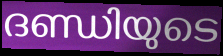
ദണ്ഡിയുടെ